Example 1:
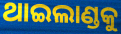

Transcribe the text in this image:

ଥାଇଲାଣ୍ଡକୁ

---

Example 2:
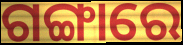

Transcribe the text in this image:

ଗଙ୍ଗାରେ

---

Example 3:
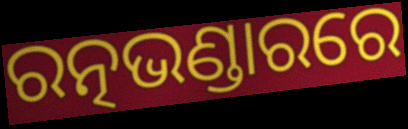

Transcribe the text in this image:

ରତ୍ନଭଣ୍ଡାରରେ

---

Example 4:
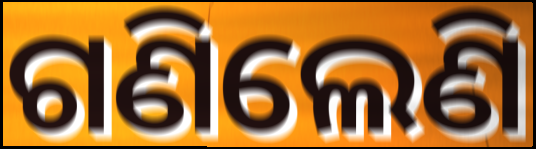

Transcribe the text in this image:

ଗଣିଲେଣି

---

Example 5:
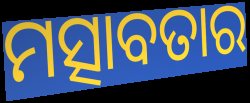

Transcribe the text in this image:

ମତ୍ସାବତାର